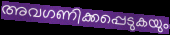
അവഗണിക്കപ്പെടുകയും